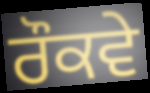
ਰੌਕਵੇ